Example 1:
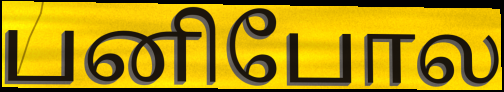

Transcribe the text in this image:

பனிபோல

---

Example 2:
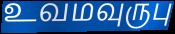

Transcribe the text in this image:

உவமவுருபு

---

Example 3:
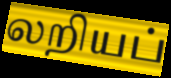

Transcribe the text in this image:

லறியப்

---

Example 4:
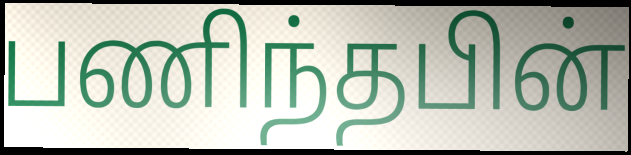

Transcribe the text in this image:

பணிந்தபின்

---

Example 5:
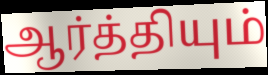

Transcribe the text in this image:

ஆர்த்தியும்